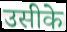
उसीके